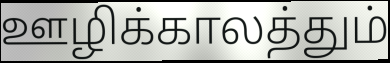
ஊழிக்காலத்தும்